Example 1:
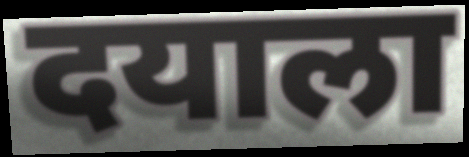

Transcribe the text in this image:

दयाला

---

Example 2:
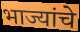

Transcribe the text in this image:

भाज्यांचे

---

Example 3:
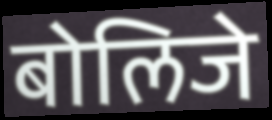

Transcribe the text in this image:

बोलिजे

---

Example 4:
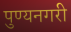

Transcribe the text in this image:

पुण्यनगरी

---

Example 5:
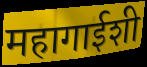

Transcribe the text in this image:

महागाईशी